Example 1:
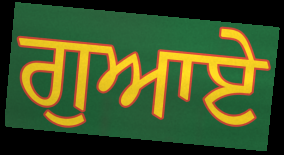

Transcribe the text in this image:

ਗੁਆਏ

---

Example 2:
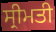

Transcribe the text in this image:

ਸ੍ਰੀਮਤੀ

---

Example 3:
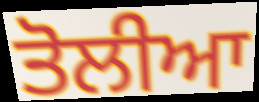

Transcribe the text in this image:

ਤੋਲੀਆ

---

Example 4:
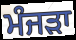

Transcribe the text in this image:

ਮੰਜੜਾ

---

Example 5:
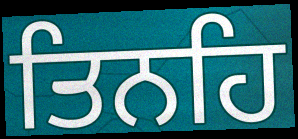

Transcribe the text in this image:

ਤਿਨਹਿ